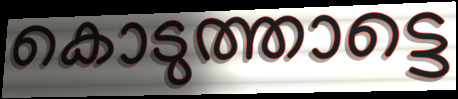
കൊടുത്താട്ടെ